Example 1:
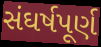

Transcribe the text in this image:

સંઘર્ષપૂર્ણ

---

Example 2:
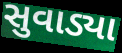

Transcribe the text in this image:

સુવાડ્યા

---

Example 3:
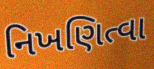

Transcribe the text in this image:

નિખણિત્વા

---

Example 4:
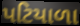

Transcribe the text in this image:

પટિયાળા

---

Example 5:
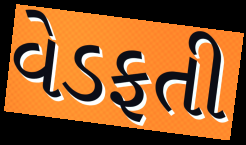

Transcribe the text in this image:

વેડફતી